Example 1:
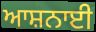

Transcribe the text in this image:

ਆਸ਼ਨਾਈ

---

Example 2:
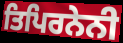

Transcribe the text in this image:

ਤਿਪਿਰਨੇਨੀ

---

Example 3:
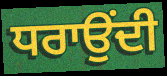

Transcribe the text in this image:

ਧਰਾਉਂਦੀ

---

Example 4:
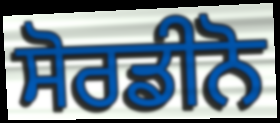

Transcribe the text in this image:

ਸੋਰਡੀਨੋ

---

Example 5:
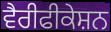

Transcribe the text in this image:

ਵੈਰੀਫੀਕੇਸ਼ਨ